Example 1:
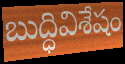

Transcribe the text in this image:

బుద్ధివిశేషం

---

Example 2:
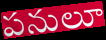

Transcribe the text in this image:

పనులూ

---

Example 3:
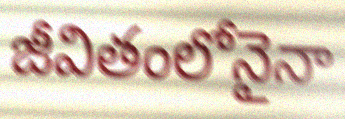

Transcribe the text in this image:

జీవితంలోనైనా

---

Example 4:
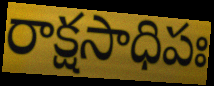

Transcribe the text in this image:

రాక్షసాధిపః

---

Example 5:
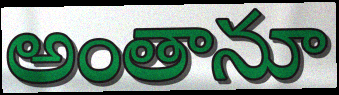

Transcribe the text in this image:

అంతానూ